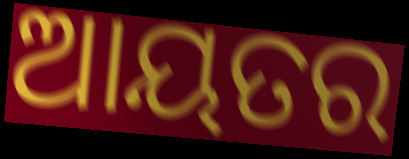
ଆୟତର